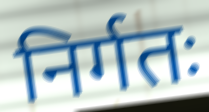
निर्गतः